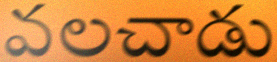
వలచాడు